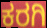
ಕರಗಿ